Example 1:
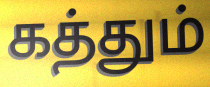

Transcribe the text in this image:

கத்தும்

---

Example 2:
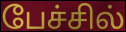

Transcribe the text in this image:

பேச்சில்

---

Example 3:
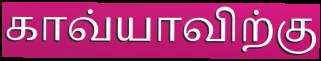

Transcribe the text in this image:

காவ்யாவிற்கு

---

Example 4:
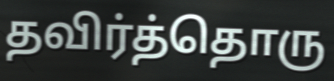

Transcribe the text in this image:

தவிர்த்தொரு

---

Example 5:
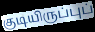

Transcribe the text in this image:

குடியிருப்புப்